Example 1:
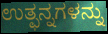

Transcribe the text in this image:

ಉತ್ಫನ್ನಗಳನ್ನು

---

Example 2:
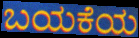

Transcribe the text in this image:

ಬಯಕೆಯ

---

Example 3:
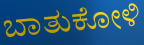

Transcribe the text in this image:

ಬಾತುಕೋಳಿ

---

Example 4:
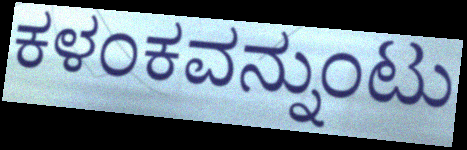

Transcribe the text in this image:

ಕಳಂಕವನ್ನುಂಟು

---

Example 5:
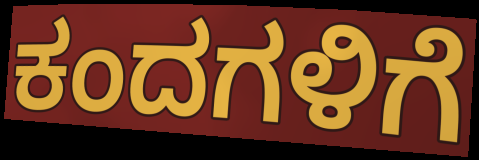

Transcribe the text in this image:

ಕಂದಗಳಿಗೆ